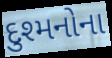
દુશ્મનોના